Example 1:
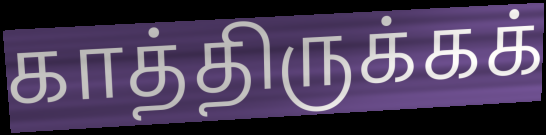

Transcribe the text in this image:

காத்திருக்கக்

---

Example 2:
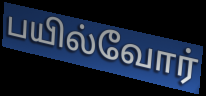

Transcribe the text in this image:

பயில்வோர்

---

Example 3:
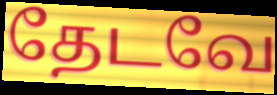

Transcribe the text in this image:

தேடவே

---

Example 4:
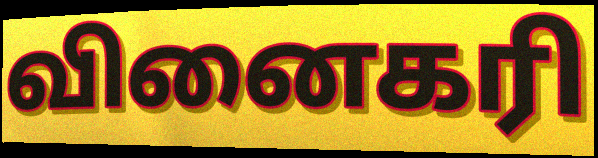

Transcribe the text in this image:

வினைகரி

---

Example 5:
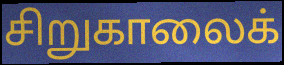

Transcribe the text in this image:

சிறுகாலைக்